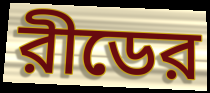
রীডের